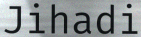
Jihadi